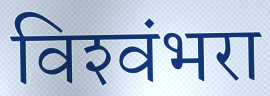
विश्वंभरा